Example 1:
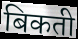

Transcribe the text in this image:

बिकती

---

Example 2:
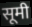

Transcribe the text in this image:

सूमी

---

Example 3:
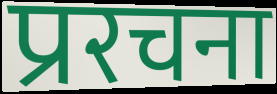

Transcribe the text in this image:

प्ररचना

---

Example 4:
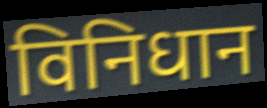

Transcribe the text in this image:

विनिधान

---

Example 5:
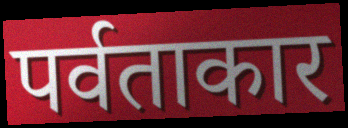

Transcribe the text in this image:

पर्वताकार